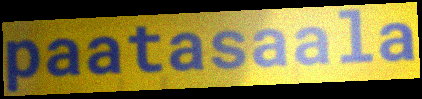
paatasaala